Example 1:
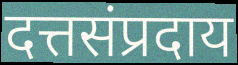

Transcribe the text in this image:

दत्तसंप्रदाय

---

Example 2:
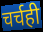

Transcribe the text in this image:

चर्चही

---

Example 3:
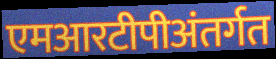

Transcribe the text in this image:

एमआरटीपीअंतर्गत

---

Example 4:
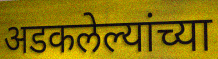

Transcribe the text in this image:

अडकलेल्यांच्या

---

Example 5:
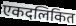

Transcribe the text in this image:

एकदलिकित